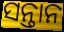
ସନ୍ତାନ